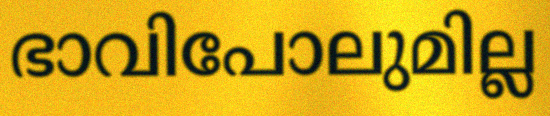
ഭാവിപോലുമില്ല